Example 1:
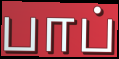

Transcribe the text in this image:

பாப்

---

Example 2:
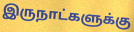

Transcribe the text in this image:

இருநாட்களுக்கு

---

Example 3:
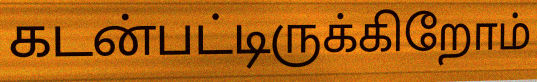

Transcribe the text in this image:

கடன்பட்டிருக்கிறோம்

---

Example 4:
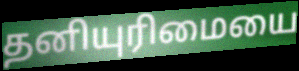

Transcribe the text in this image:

தனியுரிமையை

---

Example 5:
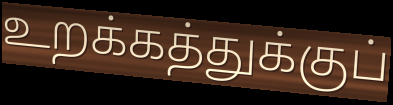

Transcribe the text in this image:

உறக்கத்துக்குப்